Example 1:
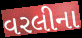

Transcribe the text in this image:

વરલીના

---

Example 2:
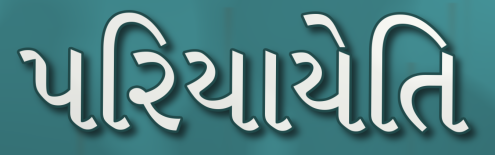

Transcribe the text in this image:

પરિયાયેતિ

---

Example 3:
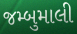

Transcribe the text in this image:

જમ્બુમાલી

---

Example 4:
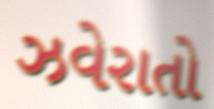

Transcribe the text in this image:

ઝવેરાતો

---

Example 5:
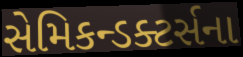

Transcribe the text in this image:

સેમિકન્ડક્ટર્સના